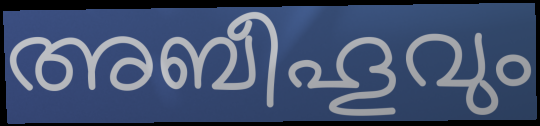
അബീഹൂവും